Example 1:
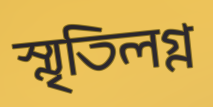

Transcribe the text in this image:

স্মৃতিলগ্ন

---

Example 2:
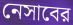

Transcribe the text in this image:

নেসাবের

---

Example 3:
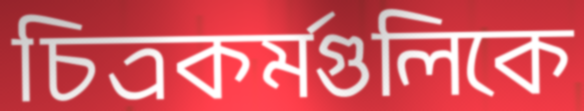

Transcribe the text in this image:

চিত্রকর্মগুলিকে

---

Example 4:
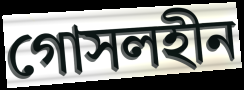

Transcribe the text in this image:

গোসলহীন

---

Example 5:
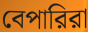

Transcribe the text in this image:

বেপারিরা